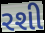
રશી